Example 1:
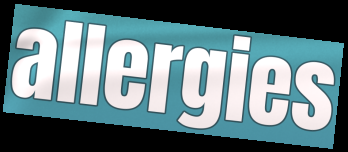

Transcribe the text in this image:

allergies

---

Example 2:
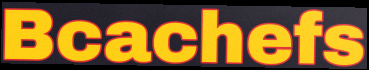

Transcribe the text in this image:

Bcachefs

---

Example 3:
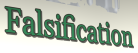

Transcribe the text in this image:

Falsification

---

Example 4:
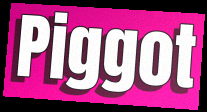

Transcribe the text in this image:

Piggot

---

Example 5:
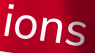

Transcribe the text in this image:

ions